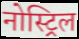
नोस्ट्रिल